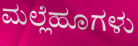
ಮಲ್ಲೆಹೂಗಳು